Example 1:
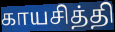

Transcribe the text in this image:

காயசித்தி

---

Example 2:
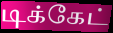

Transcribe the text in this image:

டிக்கேட்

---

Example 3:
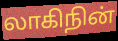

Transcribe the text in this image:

லாகிநின்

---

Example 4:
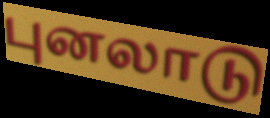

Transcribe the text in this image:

புனலாடு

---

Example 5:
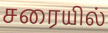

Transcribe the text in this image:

சரையில்